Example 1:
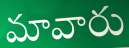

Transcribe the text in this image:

మావారు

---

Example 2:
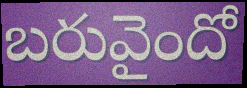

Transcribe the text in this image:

బరువైందో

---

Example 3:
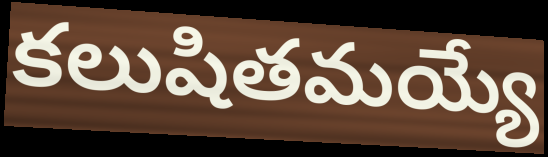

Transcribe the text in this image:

కలుషితమయ్యే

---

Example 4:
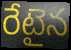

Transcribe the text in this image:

రేటైన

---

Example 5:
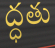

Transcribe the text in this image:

ద్ధతు